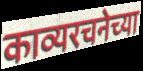
काव्यरचनेच्या